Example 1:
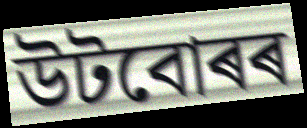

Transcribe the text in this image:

উটবোৰৰ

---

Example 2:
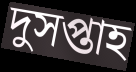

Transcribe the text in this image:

দুসপ্তাহ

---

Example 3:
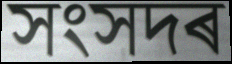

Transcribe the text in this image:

সংসদৰ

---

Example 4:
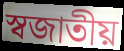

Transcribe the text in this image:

স্বজাতীয়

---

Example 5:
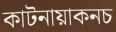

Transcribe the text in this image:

কাটনায়াকনচ